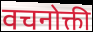
वचनोक्ती